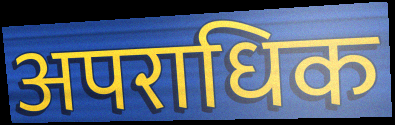
अपराधिक